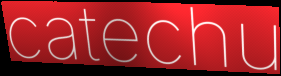
catechu